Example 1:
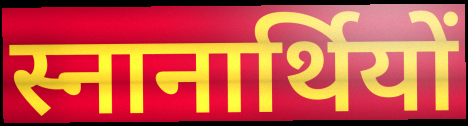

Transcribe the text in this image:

स्नानार्थियों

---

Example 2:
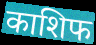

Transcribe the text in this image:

काशिफ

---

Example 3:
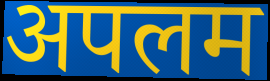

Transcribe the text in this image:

अपलम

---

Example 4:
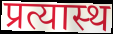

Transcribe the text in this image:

प्रत्यास्थ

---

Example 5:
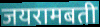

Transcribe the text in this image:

जयरामबती